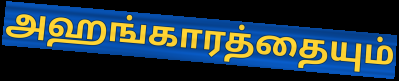
அஹங்காரத்தையும்